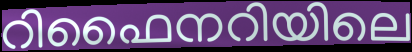
റിഫൈനറിയിലെ